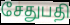
சேதுபதி